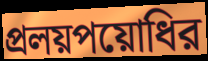
প্রলয়পয়োধির